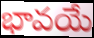
భావయే